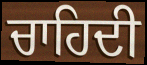
ਚਾਹਿਦੀ